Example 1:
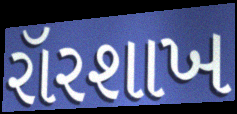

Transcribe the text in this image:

રૉરશાખ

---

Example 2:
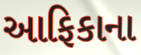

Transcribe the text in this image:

આફિકાના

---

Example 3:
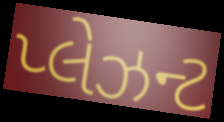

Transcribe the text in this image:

પ્લેઝન્ટ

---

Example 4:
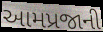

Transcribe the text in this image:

આમપ્રજાની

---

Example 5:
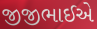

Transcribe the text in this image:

જીજીભાઈએ